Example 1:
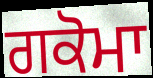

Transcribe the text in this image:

ਗਕੋਮਾ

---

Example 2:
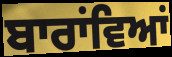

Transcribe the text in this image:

ਬਾਰਾਂਵਿਆਂ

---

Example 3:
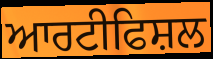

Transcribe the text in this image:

ਆਰਟੀਫਿਸ਼ਲ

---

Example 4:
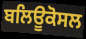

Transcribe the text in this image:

ਬਲਿਊਕੋਸਲ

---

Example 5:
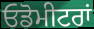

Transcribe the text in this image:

ਓਡੋਮੀਟਰਾਂ